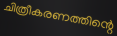
ചിത്രീകരണത്തിന്റെ